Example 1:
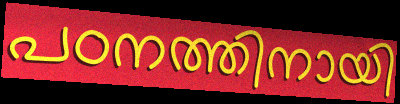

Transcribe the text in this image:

പഠനത്തിനായി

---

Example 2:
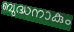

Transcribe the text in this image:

ബുദ്ധനാകും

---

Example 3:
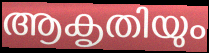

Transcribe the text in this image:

ആകൃതിയും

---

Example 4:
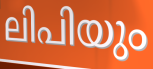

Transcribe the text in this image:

ലിപിയും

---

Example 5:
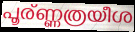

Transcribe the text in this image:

പൂര്ണ്ണത്രയീശ